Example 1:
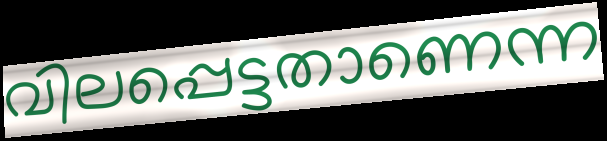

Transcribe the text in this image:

വിലപ്പെട്ടതാണെന്ന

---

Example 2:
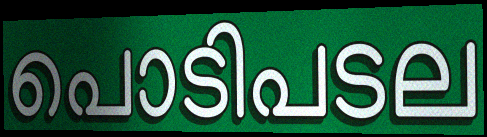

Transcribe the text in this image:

പൊടിപടല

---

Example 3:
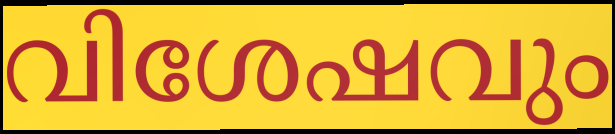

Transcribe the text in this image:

വിശേഷവും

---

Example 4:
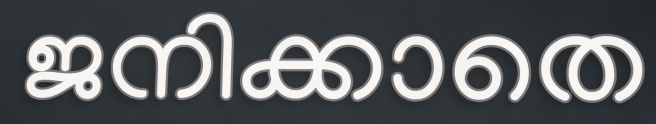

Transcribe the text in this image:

ജനിക്കാതെ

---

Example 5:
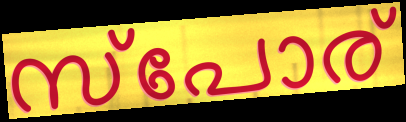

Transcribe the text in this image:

സ്പോര്